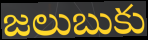
జలుబుకు